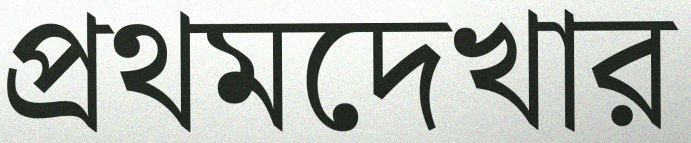
প্রথমদেখার